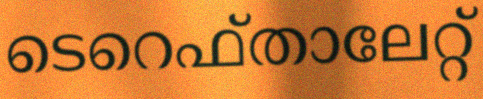
ടെറെഫ്താലേറ്റ്